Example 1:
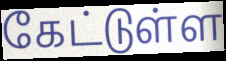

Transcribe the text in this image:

கேட்டுள்ள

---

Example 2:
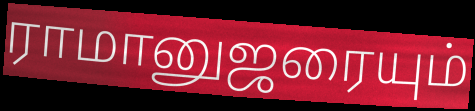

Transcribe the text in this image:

ராமானுஜரையும்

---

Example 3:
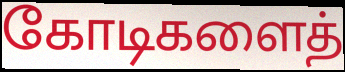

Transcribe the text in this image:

கோடிகளைத்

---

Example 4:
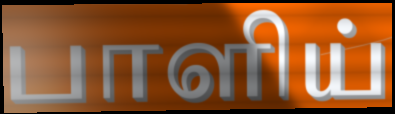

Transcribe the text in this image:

பாளிய்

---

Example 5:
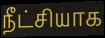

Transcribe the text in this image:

நீட்சியாக